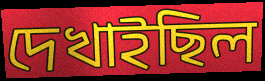
দেখাইছিল